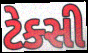
ટેક્સી